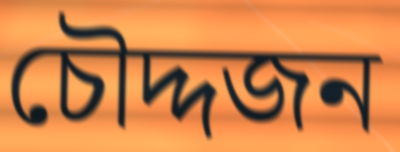
চৌদ্দজন